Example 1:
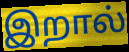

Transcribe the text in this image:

இறால்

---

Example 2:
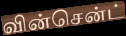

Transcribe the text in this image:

வின்சென்ட்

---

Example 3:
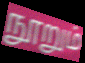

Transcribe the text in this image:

நூறும்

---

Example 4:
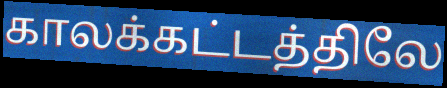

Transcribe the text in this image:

காலக்கட்டத்திலே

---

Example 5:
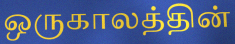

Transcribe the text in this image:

ஒருகாலத்தின்